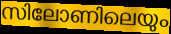
സിലോണിലെയും